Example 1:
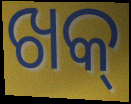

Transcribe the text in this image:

ଖକ୍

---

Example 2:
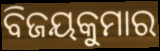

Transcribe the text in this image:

ବିଜୟକୁମାର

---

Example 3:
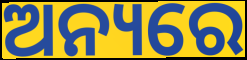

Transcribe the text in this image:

ଅନ୍ୟରେ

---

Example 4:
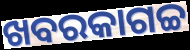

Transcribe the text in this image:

ଖବରକାଗଚ୍ଚ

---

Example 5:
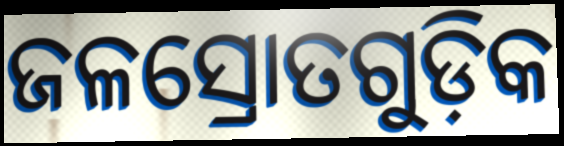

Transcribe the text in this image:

ଜଳସ୍ରୋତଗୁଡ଼ିକ